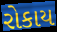
રોકાય